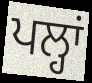
ਪਲ੍ਹਾਂ